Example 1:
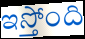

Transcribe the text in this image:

ఇస్తోంది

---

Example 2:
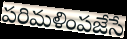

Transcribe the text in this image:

పరిమళింపజేసే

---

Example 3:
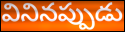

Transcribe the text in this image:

వినినప్పుడు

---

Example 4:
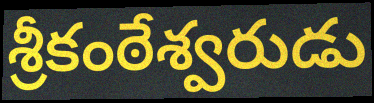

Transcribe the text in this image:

శ్రీకంఠేశ్వరుడు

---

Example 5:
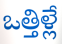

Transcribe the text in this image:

ఒత్తిళ్లే